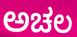
ಅಚಲ